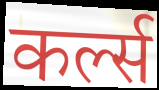
कर्ल्स